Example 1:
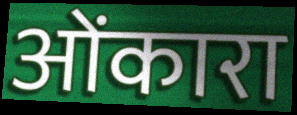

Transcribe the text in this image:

ओंकारा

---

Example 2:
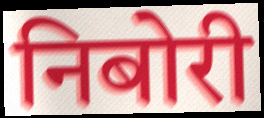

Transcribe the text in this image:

निबोरी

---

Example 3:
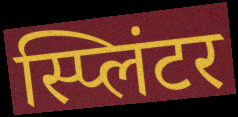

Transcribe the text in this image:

स्प्लिंटर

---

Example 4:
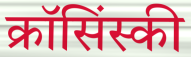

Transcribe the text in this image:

क्रॉसिंस्की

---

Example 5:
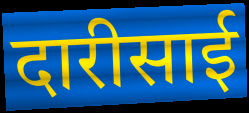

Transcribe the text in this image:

दारीसाई